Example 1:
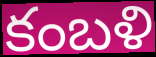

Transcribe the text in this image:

కంబళి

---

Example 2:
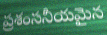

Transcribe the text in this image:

ప్రశంసనీయమైన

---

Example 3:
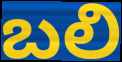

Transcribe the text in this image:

బలి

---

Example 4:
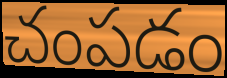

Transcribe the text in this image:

చంపడం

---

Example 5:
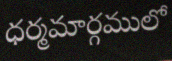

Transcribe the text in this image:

ధర్మమార్గములో